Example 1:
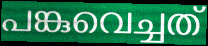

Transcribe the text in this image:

പങ്കുവെച്ചത്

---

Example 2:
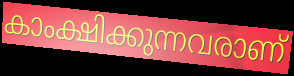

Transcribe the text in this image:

കാംക്ഷിക്കുന്നവരാണ്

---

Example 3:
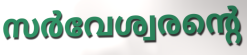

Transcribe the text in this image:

സർവേശ്വരന്റെ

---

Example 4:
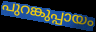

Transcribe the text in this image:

പുറങ്കുപ്പായം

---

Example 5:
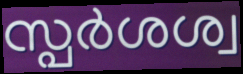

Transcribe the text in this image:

സ്പർശശ്വ